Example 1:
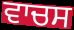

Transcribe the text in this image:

ਵਾਚਸ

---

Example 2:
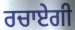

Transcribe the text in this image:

ਰਚਾਏਗੀ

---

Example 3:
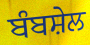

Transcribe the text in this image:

ਬੰਬਸ਼ੇਲ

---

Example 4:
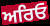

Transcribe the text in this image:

ਅਰਿਓ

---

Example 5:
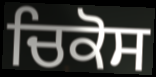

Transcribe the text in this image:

ਚਿਕੋਸ